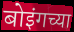
बोइंगच्या